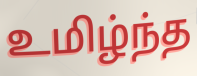
உமிழ்ந்த